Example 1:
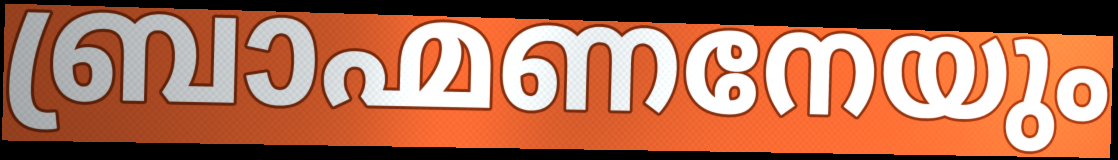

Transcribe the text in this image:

ബ്രാഹ്മണനേയും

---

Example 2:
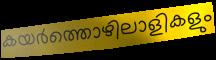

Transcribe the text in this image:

കയർത്തൊഴിലാളികളും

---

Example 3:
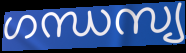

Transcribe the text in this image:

ഗന്ധസ്യ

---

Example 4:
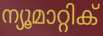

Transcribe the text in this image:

ന്യൂമാറ്റിക്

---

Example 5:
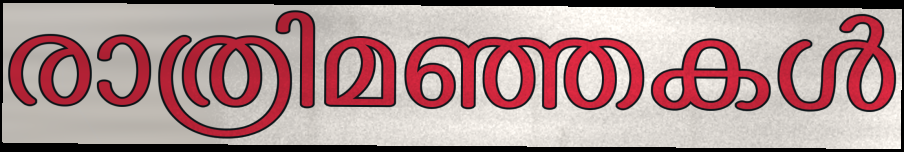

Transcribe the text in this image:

രാത്രിമഞ്ഞകൾ